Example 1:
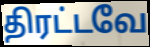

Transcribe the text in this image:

திரட்டவே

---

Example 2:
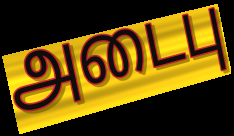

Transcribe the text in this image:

அடைபு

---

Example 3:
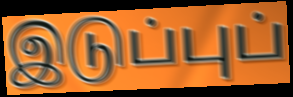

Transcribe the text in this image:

இடுப்புப்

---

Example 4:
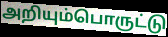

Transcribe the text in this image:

அறியும்பொருட்டு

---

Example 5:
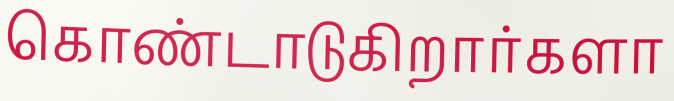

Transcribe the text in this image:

கொண்டாடுகிறார்களா